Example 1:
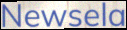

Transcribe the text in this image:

Newsela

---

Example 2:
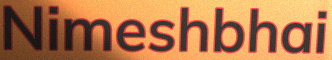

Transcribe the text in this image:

Nimeshbhai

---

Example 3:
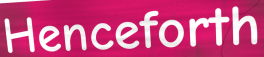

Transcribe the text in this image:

Henceforth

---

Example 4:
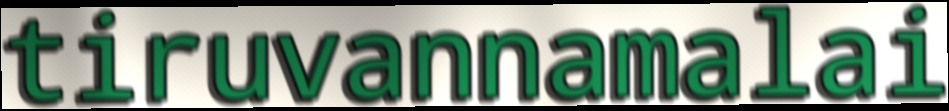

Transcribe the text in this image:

tiruvannamalai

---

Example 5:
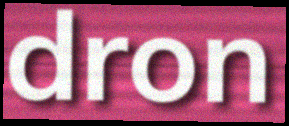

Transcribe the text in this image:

dron